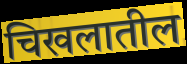
चिखलातील